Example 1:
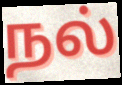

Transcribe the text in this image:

நல்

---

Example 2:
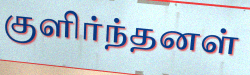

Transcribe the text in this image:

குளிர்ந்தனள்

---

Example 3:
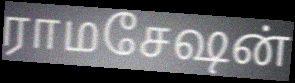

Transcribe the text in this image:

ராமசேஷன்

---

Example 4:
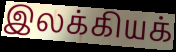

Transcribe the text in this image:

இலக்கியக்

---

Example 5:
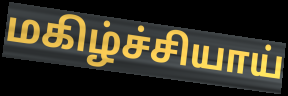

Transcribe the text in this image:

மகிழ்ச்சியாய்